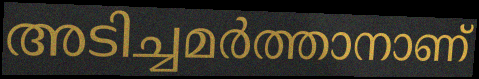
അടിച്ചമർത്താനാണ്